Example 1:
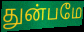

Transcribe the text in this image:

துன்பமே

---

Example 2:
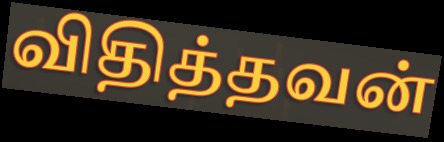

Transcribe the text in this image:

விதித்தவன்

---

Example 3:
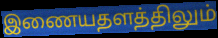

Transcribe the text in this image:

இணையதளத்திலும்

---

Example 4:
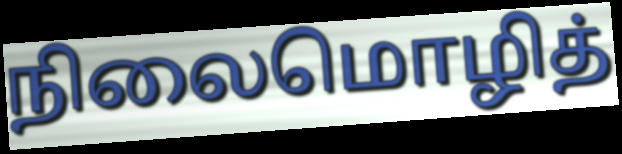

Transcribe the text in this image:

நிலைமொழித்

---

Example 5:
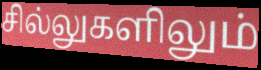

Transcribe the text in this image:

சில்லுகளிலும்